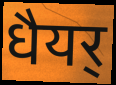
धैयर्